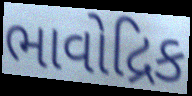
ભાવોદ્રિક